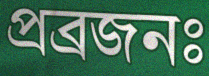
প্ৰব্ৰজনঃ